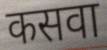
कसवा